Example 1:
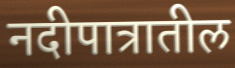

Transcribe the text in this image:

नदीपात्रातील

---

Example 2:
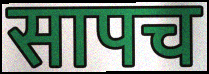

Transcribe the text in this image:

सापच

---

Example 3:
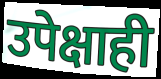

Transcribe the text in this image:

उपेक्षाही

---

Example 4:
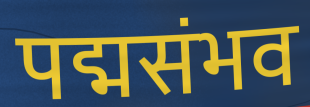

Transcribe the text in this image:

पद्मसंभव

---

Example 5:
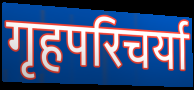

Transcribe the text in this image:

गृहपरिचर्या